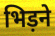
भिड़ने